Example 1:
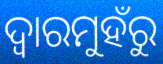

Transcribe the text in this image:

ଦ୍ଵାରମୁହଁରୁ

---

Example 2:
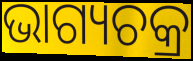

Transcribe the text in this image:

ଭାଗ୍ୟଚକ୍ର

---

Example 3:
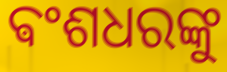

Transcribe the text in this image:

ଵଂଶଧରଙ୍କୁ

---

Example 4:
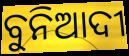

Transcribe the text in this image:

ବୁନିଆଦୀ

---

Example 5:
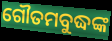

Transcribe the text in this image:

ଗୌତମବୁଦ୍ଧଙ୍କ